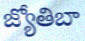
జ్యోతిబా